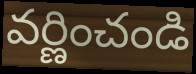
వర్ణించండి